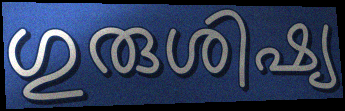
ഗുരുശിഷ്യ